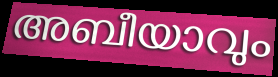
അബീയാവും